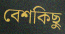
বেশকিছু